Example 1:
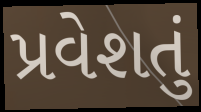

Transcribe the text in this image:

પ્રવેશતું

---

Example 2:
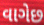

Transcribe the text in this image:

વાગેછ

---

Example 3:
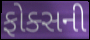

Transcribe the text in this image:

ફોક્સની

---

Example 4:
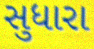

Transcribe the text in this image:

સુધારા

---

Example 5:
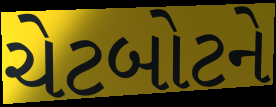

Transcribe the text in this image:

ચેટબોટને